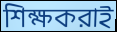
শিক্ষকরাই